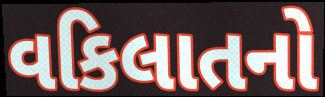
વકિલાતનો